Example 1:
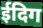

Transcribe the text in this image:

ईदिग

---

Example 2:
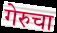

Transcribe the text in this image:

गेरुचा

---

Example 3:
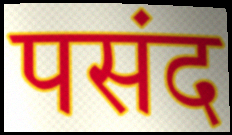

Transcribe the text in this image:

पसंद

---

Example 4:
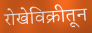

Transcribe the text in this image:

रोखेविक्रीतून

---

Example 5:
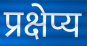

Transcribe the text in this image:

प्रक्षेप्य